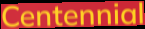
Centennial